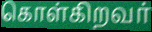
கொள்கிறவர்